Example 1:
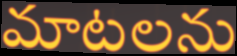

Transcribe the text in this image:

మాటలను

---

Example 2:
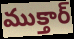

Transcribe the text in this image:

ముక్తార్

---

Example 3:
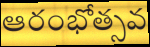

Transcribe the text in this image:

ఆరంభోత్సవ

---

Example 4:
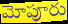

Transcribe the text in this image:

మోపూరు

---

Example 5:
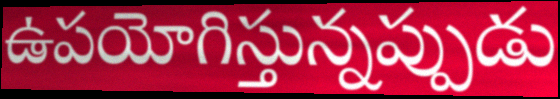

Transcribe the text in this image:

ఉపయోగిస్తున్నప్పుడు